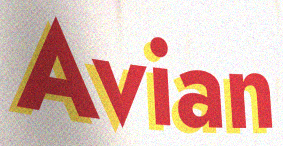
Avian